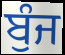
ਬੁੰਜ